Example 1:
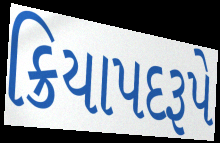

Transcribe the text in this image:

ક્રિયાપદરૂપે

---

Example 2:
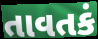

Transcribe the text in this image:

તાવતકં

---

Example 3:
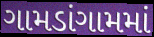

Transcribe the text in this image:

ગામડાંગામમાં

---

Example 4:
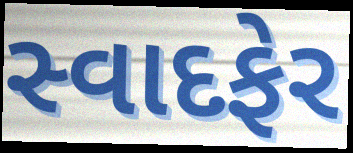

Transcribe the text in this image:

સ્વાદફેર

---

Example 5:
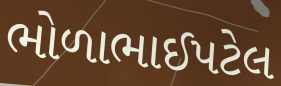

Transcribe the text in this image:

ભોળાભાઈપટેલ